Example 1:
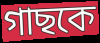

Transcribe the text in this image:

গাছকে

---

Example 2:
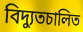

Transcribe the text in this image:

বিদ্যুতচালিত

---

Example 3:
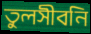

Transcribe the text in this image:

তুলসীবনি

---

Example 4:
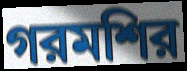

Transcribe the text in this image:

গরমশির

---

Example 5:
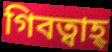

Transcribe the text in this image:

গিবত্বাহ্